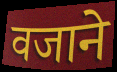
वजाने